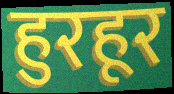
हुरहूर